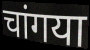
चांगया